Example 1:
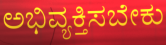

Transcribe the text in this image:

ಅಭಿವ್ಯಕ್ತಿಸಬೇಕು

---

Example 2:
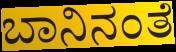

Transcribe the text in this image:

ಬಾನಿನಂತೆ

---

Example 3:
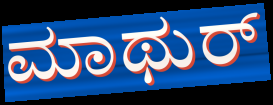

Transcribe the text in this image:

ಮಾಥುರ್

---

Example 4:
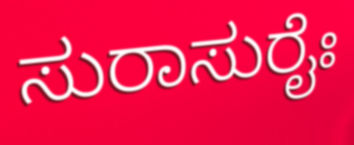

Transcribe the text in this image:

ಸುರಾಸುರೈಃ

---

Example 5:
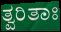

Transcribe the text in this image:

ತ್ವರಿತಾಃ